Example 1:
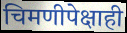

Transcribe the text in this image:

चिमणीपेक्षाही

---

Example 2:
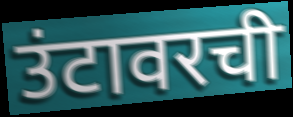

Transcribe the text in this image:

उंटावरची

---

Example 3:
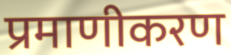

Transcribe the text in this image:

प्रमाणीकरण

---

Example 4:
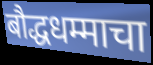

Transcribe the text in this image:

बौद्धधम्माचा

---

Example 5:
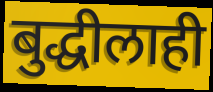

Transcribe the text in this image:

बुद्धीलाही